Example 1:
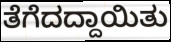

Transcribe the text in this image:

ತೆಗೆದದ್ದಾಯಿತು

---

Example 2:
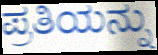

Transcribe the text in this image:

ಪ್ರತಿಯನ್ನು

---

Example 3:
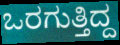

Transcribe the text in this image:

ಒರಗುತ್ತಿದ್ದ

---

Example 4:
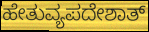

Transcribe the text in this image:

ಹೇತುವ್ಯಪದೇಶಾತ್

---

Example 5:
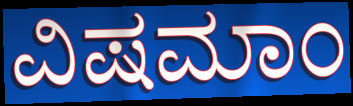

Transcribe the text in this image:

ವಿಷಮಾಂ